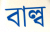
বাল্ব